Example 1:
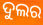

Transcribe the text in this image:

ଦୁଲର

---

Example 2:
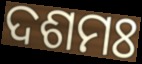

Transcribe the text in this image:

ଦଶମଃ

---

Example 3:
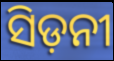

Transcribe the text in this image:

ସିଡ଼ନୀ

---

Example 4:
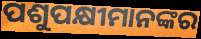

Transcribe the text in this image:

ପଶୁପକ୍ଷୀମାନଙ୍କର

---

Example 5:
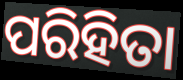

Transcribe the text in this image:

ପରିହିତା